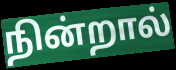
நின்றால்